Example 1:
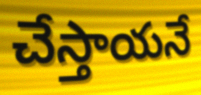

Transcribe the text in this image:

చేస్తాయనే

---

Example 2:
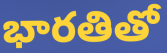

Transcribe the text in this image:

భారతితో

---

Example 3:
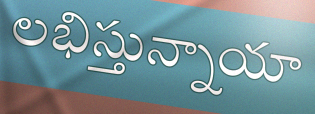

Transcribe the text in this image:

లభిస్తున్నాయా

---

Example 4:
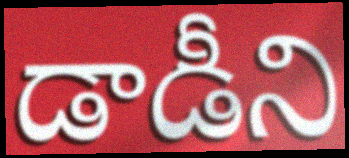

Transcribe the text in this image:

డాడీని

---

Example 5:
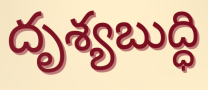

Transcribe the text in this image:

దృశ్యబుద్ధి